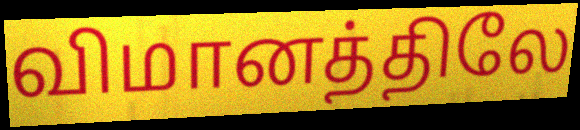
விமானத்திலே